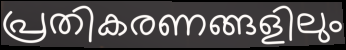
പ്രതികരണങ്ങളിലും